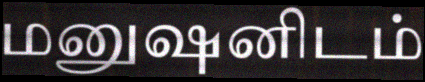
மனுஷனிடம்